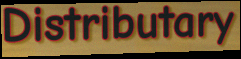
Distributary